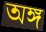
অঙ্গ